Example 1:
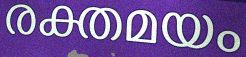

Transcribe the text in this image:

രക്തമയം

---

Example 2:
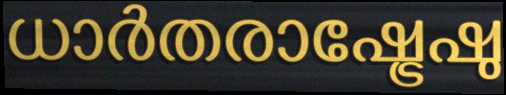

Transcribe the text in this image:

ധാർതരാഷ്ട്രേഷു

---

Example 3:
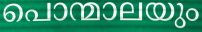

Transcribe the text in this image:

പൊന്മാലയും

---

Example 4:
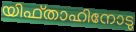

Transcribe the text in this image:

യിഫ്താഹിനോടു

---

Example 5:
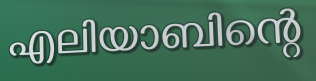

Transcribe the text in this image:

എലിയാബിന്റെ